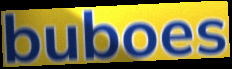
buboes